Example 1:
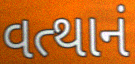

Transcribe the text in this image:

વત્થાનં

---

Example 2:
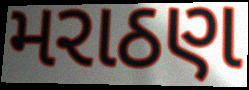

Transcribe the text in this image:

મરાઠણ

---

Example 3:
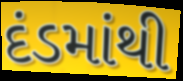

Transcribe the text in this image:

દંડમાંથી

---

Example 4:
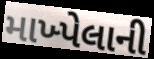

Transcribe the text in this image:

માખ્પેલાની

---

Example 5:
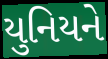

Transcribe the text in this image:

યુનિયને